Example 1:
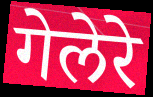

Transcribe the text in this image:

गेलेरे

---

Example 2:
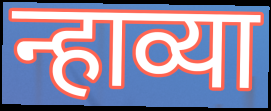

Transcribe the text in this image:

न्हाव्या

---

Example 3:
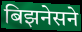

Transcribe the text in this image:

बिझनेसने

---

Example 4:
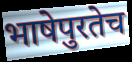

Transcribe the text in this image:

भाषेपुरतेच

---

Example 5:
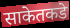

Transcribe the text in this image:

साकेतकडे